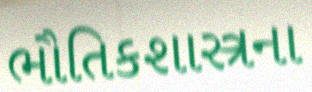
ભૌતિકશાસ્ત્રના